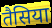
तैसिया